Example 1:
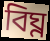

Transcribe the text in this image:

বিঘ্ন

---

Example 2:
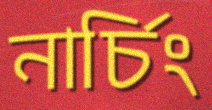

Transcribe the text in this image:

নাৰ্চিং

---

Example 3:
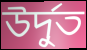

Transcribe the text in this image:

উৰ্দুত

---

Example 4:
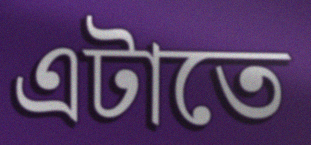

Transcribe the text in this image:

এটাতে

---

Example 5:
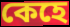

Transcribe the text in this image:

কেহে